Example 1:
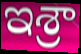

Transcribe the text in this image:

ఇశ్రా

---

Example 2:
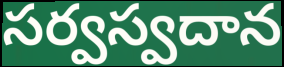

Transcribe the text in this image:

సర్వస్వదాన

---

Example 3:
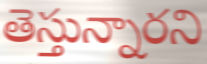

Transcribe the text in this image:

తెస్తున్నారని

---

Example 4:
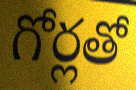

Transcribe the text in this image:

గోర్లతో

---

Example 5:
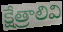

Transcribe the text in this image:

క్షేత్రాలివి